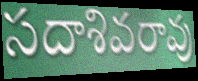
సదాశివరావు